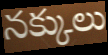
నక్కులు